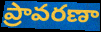
ప్రావరణా